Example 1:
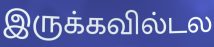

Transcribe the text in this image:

இருக்கவில்டல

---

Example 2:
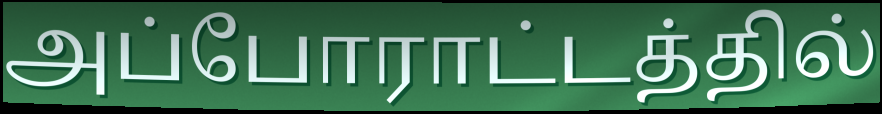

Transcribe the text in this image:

அப்போராட்டத்தில்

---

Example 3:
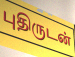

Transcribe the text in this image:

புதிருடன்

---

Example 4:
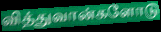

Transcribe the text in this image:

வித்துவான்களோடு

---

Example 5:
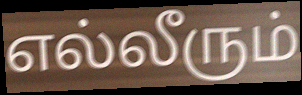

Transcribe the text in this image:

எல்லீரும்